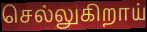
செல்லுகிறாய்